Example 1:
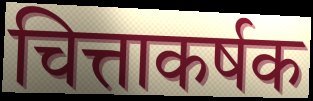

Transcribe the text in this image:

चित्ताकर्षक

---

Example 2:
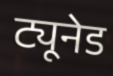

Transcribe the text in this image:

ट्यूनेड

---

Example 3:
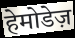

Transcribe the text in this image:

हेमोडेज़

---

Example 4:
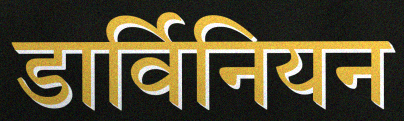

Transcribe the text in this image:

डार्विनियन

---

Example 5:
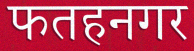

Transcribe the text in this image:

फतहनगर